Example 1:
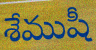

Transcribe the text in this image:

శేముషీ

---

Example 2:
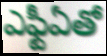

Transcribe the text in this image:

ఎఫ్టీఏతో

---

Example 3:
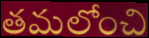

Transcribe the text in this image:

తమలోంచి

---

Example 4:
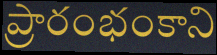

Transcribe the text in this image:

ప్రారంభంకాని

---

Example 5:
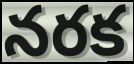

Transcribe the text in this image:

నరక